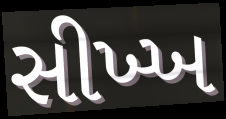
સીખ્ખ